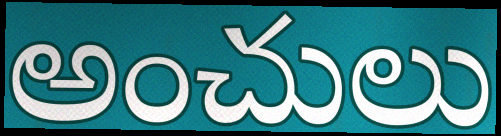
అంచులు